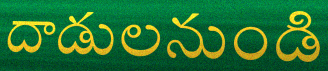
దాడులనుండి